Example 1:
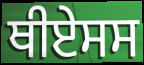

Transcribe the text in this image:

ਥੀਏਸਸ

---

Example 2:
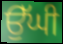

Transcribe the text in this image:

ਉੱਘੀ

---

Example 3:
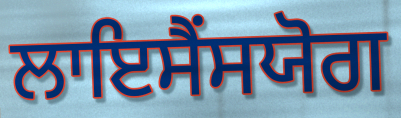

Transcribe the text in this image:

ਲਾਇਸੈਂਸਯੋਗ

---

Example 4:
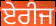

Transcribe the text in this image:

ਏਰੀਜ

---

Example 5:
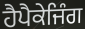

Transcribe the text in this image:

ਹੈਪੈਕੇਜਿੰਗ